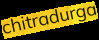
chitradurga